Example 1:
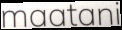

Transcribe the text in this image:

maatani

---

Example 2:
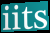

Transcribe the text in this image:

iits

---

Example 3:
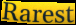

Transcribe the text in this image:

Rarest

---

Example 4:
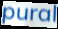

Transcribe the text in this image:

pural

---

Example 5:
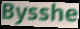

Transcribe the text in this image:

Bysshe